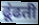
ढूंढती